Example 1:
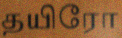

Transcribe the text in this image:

தயிரோ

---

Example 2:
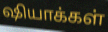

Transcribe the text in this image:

ஷியாக்கள்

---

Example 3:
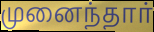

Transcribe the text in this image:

முனைந்தார்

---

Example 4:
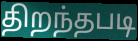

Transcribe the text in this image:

திறந்தபடி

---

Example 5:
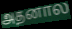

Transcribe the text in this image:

அதனால